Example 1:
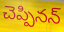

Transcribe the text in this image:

చెప్పినన్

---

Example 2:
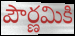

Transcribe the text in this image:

పౌర్ణమికి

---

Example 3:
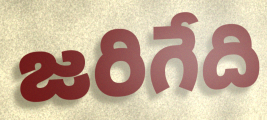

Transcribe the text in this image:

జరిగేది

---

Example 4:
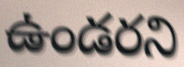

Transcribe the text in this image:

ఉండరని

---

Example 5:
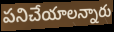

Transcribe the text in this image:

పనిచేయాలన్నారు